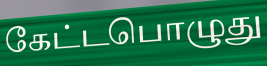
கேட்டபொழுது